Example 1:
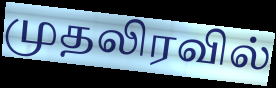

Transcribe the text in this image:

முதலிரவில்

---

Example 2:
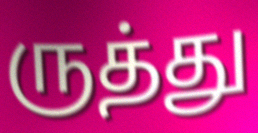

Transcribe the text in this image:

ருத்து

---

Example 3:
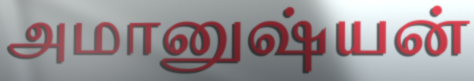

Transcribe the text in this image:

அமானுஷ்யன்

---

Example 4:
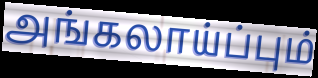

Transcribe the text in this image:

அங்கலாய்ப்பும்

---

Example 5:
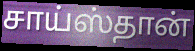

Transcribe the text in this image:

சாய்ஸ்தான்